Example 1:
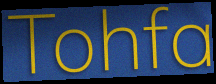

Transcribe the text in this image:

Tohfa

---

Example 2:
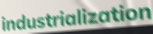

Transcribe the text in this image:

industrialization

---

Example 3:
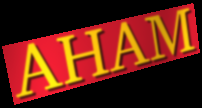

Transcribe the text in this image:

AHAM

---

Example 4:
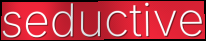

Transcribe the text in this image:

seductive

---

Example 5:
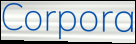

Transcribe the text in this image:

Corpora